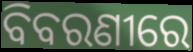
ବିବରଣୀରେ